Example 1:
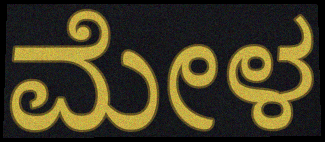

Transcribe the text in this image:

ಮೇಳ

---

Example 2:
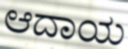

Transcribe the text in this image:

ಆದಾಯ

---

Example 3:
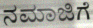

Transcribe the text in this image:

ನಮಾಜಿಗೆ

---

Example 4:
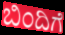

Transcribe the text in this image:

ಬಿಂದಿಗೆ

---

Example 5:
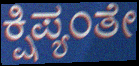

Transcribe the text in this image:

ಕ್ಷಿಪ್ಯಂತೇ